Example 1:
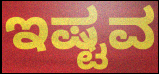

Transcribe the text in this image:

ಇಷ್ಟವ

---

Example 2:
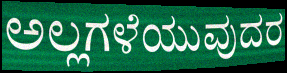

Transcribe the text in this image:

ಅಲ್ಲಗಳೆಯುವುದರ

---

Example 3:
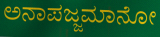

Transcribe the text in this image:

ಅನಾಪಜ್ಜಮಾನೋ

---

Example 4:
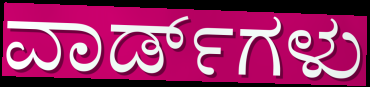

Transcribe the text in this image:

ವಾರ್ಡ್‌ಗಳು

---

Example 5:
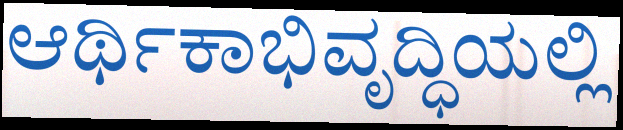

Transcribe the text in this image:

ಆರ್ಥಿಕಾಭಿವೃದ್ಧಿಯಲ್ಲಿ